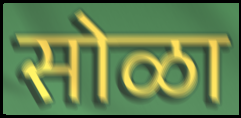
सोळा